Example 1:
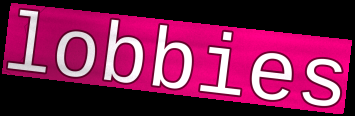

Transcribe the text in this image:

lobbies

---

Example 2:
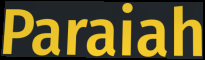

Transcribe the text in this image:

Paraiah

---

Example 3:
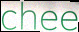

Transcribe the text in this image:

chee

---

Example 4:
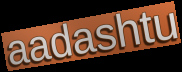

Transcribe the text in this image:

aadashtu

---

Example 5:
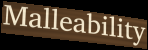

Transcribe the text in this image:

Malleability